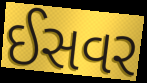
ઈસવર